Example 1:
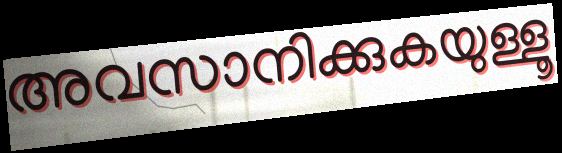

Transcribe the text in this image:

അവസാനിക്കുകയുള്ളൂ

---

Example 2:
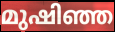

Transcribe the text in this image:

മുഷിഞ്ഞ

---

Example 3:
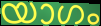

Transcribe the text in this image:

യാഗം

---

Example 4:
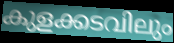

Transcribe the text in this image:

കുളക്കടവിലും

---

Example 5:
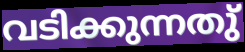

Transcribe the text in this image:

വടിക്കുന്നതു്